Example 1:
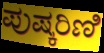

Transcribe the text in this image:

ಪುಷ್ಕರಿಣಿ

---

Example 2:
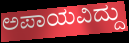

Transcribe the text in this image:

ಅಪಾಯವಿದ್ದು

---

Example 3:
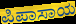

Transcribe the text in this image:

ಪಿಪಾಸಾಯ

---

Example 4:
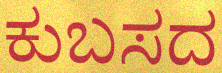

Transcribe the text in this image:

ಕುಬಸದ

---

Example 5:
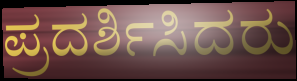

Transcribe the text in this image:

ಪ್ರದರ್ಶಿಸಿದರು